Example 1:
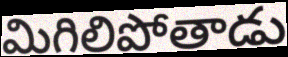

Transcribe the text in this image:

మిగిలిపోతాడు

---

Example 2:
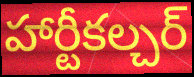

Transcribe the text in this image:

హార్టీకల్చర్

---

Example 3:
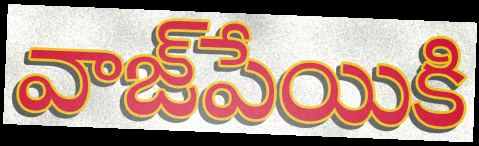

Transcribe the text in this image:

వాజ్‌పేయికి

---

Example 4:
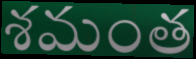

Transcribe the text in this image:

శమంత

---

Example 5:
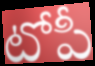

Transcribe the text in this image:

టోపీ